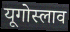
यूगोस्लाव